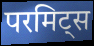
परमिट्स